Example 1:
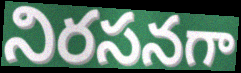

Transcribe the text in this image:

నిరసనగా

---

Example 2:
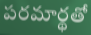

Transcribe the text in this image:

పరమార్థతో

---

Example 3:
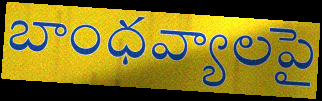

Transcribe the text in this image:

బాంధవ్యాలపై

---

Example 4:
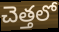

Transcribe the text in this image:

చెత్తలో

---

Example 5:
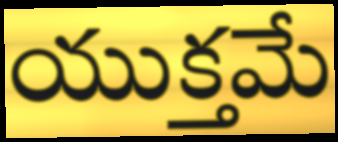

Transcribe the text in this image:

యుక్తమే